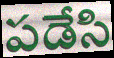
పడేసి